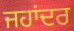
ਜਹਾਂਦਰ